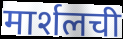
मार्शलची